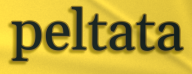
peltata